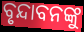
ବୃନ୍ଦାବନଙ୍କୁ